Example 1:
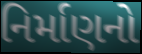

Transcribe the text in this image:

નિર્માણનો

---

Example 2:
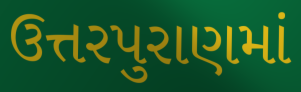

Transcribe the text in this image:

ઉત્તરપુરાણમાં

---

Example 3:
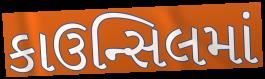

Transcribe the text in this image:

કાઉન્સિલમાં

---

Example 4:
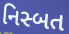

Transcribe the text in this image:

નિસ્બત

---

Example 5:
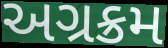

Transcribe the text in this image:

અગ્રક્રમ